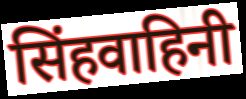
सिंहवाहिनी